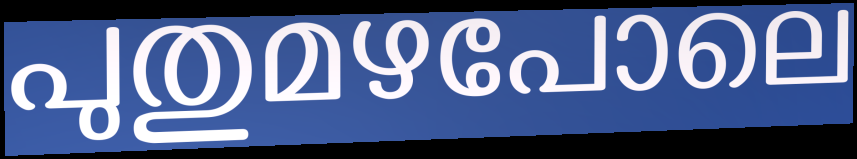
പുതുമഴപോലെ